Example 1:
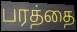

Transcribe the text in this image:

பரத்தை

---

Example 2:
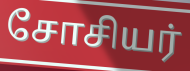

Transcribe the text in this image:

சோசியர்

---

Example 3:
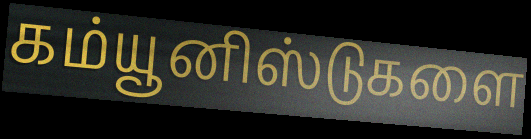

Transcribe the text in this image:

கம்யூனிஸ்டுகளை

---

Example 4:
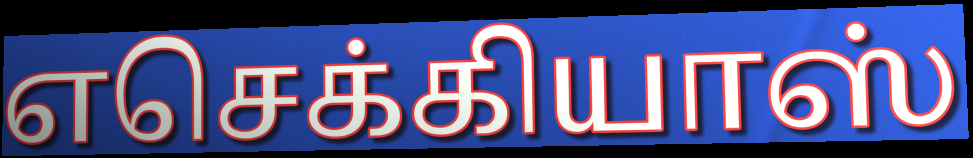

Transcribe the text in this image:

எசெக்கியாஸ்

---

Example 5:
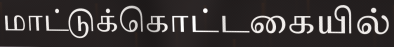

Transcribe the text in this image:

மாட்டுக்கொட்டகையில்